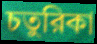
চতুরিকা